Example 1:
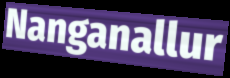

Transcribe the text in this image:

Nanganallur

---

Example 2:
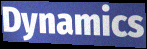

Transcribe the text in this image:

Dynamics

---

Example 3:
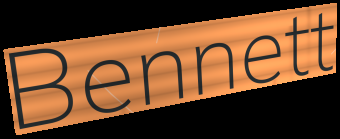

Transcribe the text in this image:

Bennett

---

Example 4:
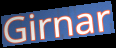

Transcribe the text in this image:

Girnar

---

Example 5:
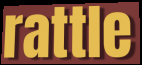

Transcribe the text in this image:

rattle